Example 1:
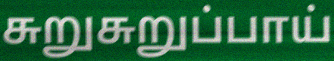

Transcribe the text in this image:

சுறுசுறுப்பாய்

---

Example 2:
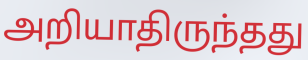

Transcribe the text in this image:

அறியாதிருந்தது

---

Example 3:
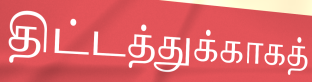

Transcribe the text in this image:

திட்டத்துக்காகத்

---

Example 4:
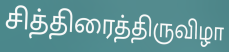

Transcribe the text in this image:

சித்திரைத்திருவிழா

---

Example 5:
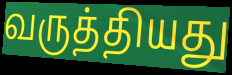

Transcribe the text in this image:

வருத்தியது